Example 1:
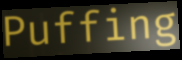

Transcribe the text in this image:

Puffing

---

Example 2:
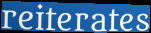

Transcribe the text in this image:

reiterates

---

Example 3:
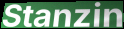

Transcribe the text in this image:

Stanzin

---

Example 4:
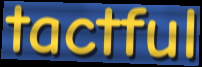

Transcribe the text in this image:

tactful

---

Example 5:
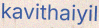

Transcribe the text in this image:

kavithaiyil